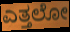
ಎತ್ತಲೋ